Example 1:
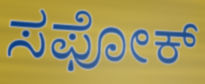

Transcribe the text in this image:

ಸಫೋಕ್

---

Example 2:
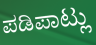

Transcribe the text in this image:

ಪಡಿಪಾಟ್ಲು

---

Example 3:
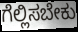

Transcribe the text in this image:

ಗೆಲ್ಲಿಸಬೇಕು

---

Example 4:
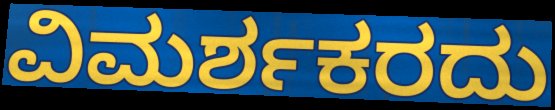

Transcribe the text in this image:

ವಿಮರ್ಶಕರದು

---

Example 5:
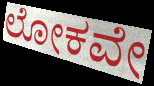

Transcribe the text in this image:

ಲೋಕವೇ